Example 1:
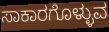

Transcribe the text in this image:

ಸಾಕಾರಗೊಳ್ಳುವ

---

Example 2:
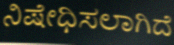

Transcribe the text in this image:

ನಿಷೇಧಿಸಲಾಗಿದೆ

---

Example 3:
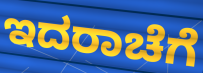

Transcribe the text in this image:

ಇದರಾಚೆಗೆ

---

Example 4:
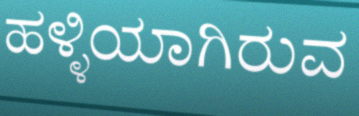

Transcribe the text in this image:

ಹಳ್ಳಿಯಾಗಿರುವ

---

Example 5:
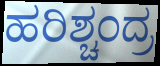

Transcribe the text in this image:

ಹರಿಶ್ಚಂದ್ರ